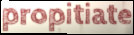
propitiate